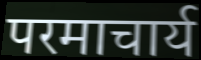
परमाचार्य